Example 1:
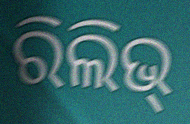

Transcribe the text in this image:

ରିଲିଭ୍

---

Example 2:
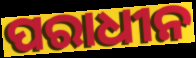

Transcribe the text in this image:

ପରାଧୀନ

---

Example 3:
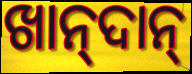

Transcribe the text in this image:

ଖାନ୍‍ଦାନ୍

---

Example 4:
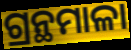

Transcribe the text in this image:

ଗ୍ରନ୍ଥମାଳା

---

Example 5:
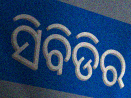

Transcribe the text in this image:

ସିବିଡିର